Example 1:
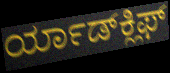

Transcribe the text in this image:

ರ್ಯಾಡ್‍ಕ್ಲಿಫ್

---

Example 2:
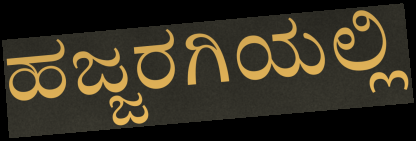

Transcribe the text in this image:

ಹಜ್ಜರಗಿಯಲ್ಲಿ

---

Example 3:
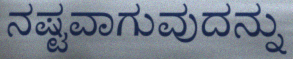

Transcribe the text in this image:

ನಷ್ಟವಾಗುವುದನ್ನು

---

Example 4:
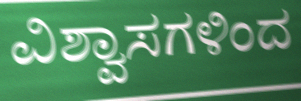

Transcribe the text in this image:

ವಿಶ್ವಾಸಗಳಿಂದ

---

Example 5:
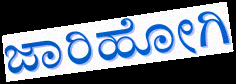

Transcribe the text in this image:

ಜಾರಿಹೋಗಿ